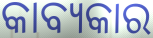
କାବ୍ୟକାର